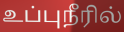
உப்புநீரில்